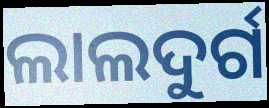
ଲାଲଦୁର୍ଗ